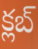
క్లబ్